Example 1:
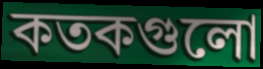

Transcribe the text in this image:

কতকগুলো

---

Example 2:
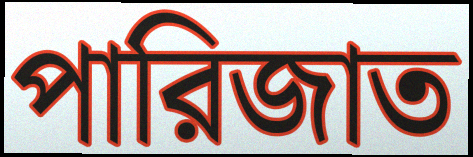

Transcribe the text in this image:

পারিজাত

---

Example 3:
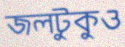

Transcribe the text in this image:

জলটুকুও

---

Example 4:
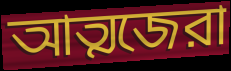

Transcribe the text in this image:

আত্মজেরা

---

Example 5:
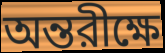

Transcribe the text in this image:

অন্তরীক্ষে